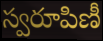
స్వరూపిణీ